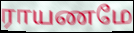
ராயணமே